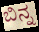
ಬಿನ್ನ